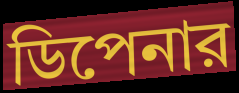
ডিপেনার